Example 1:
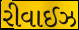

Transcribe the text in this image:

રીવાઈઝ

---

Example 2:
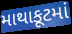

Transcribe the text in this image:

માથાકૂટમાં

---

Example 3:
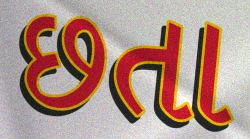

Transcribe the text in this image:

છતા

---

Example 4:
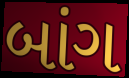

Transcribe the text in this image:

બાંગ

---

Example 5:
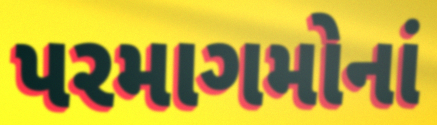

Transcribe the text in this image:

પરમાગમોનાં